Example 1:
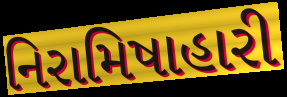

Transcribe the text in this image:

નિરામિષાહારી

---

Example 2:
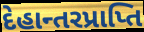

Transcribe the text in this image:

દેહાન્તરપ્રાપ્તિ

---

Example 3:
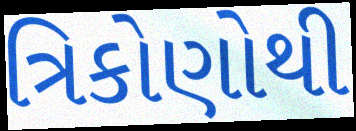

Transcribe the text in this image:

ત્રિકોણોથી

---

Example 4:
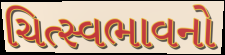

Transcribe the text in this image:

ચિત્સ્વભાવનો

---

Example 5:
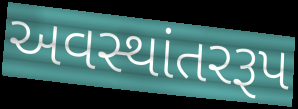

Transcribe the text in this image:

અવસ્થાંતરરૂપ